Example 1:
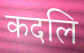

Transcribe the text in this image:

कदलि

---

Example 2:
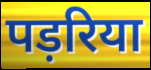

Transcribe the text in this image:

पड़रिया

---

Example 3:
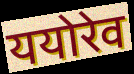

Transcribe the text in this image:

ययोरेव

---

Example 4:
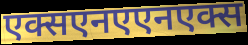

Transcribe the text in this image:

एक्सएनएएनएक्स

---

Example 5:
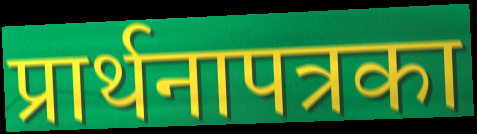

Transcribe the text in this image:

प्रार्थनापत्रका